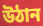
উঠান